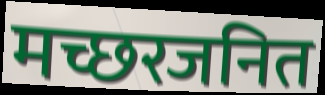
मच्छरजनित